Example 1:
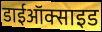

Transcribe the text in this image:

डाईऑक्साइड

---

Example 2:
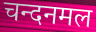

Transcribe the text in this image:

चन्दनमल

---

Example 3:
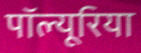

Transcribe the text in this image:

पॉल्यूरिया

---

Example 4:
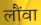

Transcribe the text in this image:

लौंवा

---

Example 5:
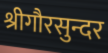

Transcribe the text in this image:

श्रीगौरसुन्दर